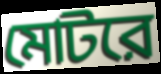
মোটরে